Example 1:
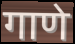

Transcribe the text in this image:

गाणे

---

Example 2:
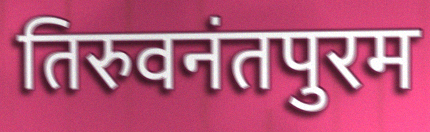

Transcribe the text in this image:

तिरुवनंतपुरम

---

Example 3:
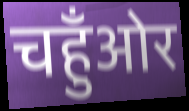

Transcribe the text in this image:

चहुँओर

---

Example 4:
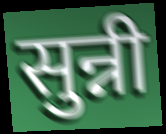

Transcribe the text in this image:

सुन्नी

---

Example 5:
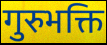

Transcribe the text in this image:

गुरुभक्ति